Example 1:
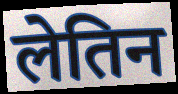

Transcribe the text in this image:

लेतिन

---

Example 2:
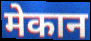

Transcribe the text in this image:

मेकान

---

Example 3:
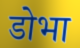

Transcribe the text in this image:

डोभा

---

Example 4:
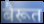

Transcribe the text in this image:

बैरूत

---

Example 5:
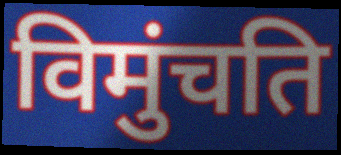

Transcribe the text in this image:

विमुंचति